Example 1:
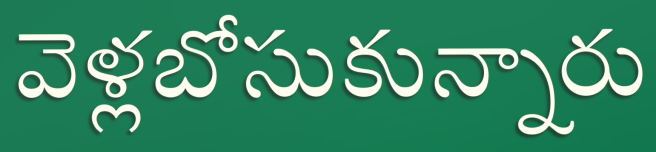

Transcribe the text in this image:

వెళ్లబోసుకున్నారు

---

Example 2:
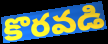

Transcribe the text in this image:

కొరవడి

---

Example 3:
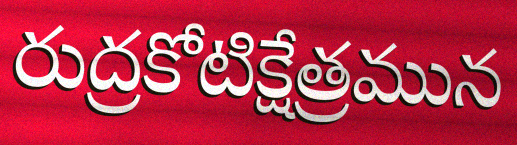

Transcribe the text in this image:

రుద్రకోటిక్షేత్రమున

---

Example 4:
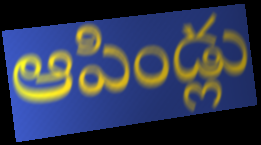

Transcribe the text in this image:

ఆపిండ్లు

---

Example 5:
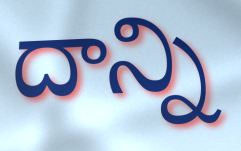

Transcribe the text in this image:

దాన్ని